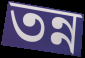
তন্ন